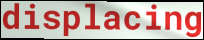
displacing